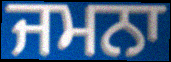
ਜਮਨਾ